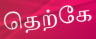
தெற்கே